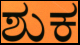
ಶುಕ